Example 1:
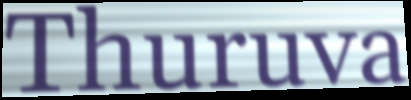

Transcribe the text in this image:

Thuruva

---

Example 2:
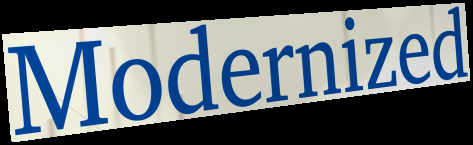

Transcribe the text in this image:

Modernized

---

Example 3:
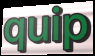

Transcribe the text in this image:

quip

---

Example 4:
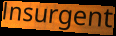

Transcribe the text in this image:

Insurgent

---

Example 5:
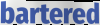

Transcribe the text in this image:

bartered